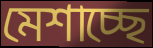
মেশাচ্ছে